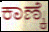
ಕಾಣ್ಕೆ